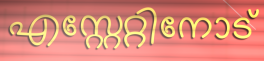
എസ്റ്റേറ്റിനോട്